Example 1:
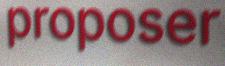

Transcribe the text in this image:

proposer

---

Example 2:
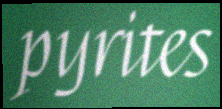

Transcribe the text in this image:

pyrites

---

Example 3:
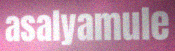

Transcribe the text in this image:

asalyamule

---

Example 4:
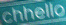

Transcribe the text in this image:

chhello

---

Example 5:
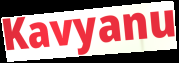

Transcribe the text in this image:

Kavyanu